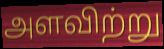
அளவிற்று